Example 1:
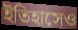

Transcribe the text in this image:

ইতিহাসেও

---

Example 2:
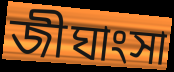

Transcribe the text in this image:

জীঘাংসা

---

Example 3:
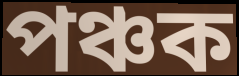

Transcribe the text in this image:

পঞ্চক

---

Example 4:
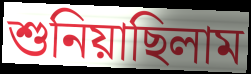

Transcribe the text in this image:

শুনিয়াছিলাম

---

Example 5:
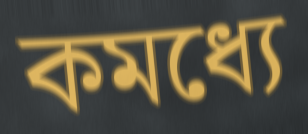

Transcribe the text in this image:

কমধ্যে